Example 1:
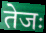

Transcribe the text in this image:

तेजः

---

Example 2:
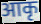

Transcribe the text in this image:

आकृ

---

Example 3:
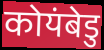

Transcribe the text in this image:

कोयंबेडु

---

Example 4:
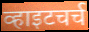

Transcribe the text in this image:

व्हाइटचर्च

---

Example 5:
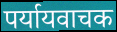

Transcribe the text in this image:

पर्यायवाचक